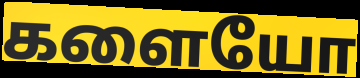
களையோ